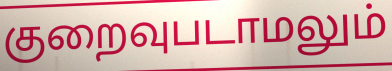
குறைவுபடாமலும்